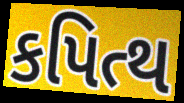
કપિત્થ